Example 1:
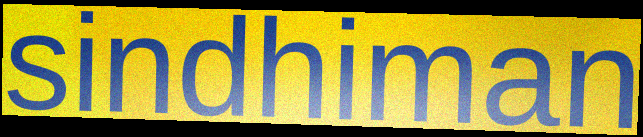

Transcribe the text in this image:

sindhiman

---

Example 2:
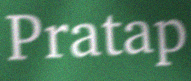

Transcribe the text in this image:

Pratap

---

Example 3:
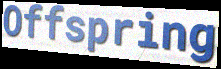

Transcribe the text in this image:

Offspring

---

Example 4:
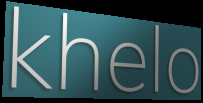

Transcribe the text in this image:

khelo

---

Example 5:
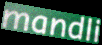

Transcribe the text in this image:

mandli